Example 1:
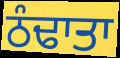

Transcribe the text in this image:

ਠੰਢਾਤਾ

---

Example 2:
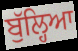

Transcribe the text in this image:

ਬੁੱਲ੍ਹਿਆ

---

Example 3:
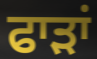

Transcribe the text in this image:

ਫਾੜਾਂ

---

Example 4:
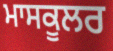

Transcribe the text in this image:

ਮਾਸਕੂਲਰ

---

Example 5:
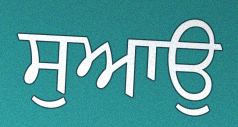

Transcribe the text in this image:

ਸੁਆਉ